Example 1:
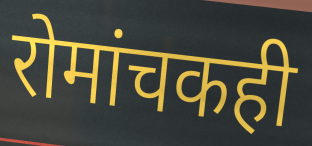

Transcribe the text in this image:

रोमांचकही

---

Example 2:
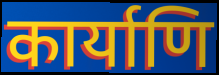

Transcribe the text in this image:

कार्याणि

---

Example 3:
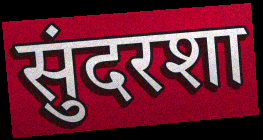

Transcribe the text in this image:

सुंदरशा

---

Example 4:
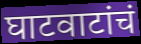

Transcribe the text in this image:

घाटवाटांचं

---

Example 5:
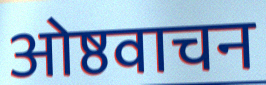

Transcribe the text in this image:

ओष्ठवाचन